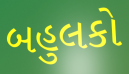
બહુલકો